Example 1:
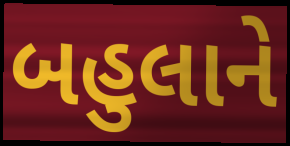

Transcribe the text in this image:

બહુલાને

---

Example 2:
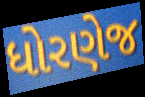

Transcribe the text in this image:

ધોરણેજ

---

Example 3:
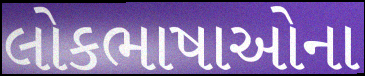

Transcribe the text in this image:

લોકભાષાઓના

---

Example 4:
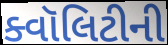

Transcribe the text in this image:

ક્વૉલિટીની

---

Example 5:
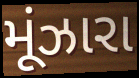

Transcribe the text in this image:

મૂંઝારા